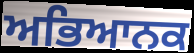
ਅਭਿਆਨਕ